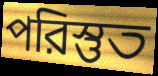
পরিস্তুত